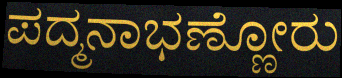
ಪದ್ಮನಾಭಣ್ಣೋರು